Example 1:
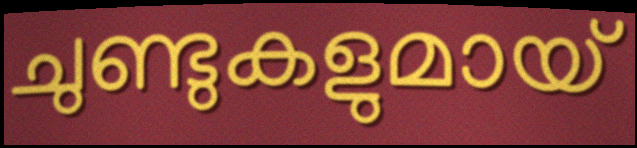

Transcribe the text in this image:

ചുണ്ടുകളുമായ്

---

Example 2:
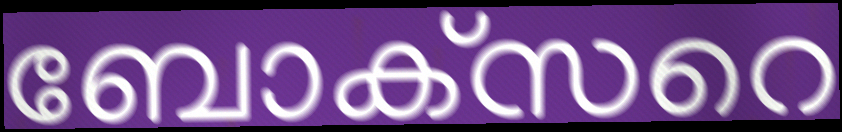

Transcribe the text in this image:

ബോക്‌സറെ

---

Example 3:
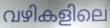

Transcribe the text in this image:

വഴികളിലെ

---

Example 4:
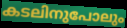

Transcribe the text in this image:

കടലിനുപോലും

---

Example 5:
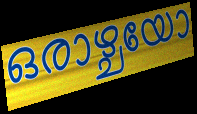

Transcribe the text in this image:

ഒരാഴ്ചയോ